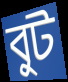
বুট